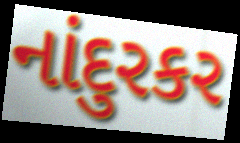
નાંદુરકર